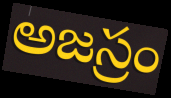
అజస్రం